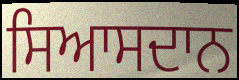
ਸਿਆਸਦਾਨ